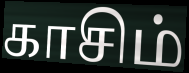
காசிம்